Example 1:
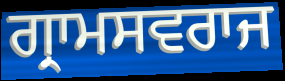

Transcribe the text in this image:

ਗ੍ਰਾਮਸਵਰਾਜ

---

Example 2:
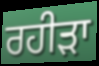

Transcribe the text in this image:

ਰਹੀੜਾ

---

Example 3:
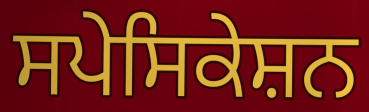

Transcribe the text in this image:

ਸਪੇਸਿਕੇਸ਼ਨ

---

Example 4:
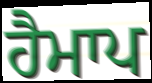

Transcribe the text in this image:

ਹੈਮਾਪ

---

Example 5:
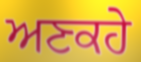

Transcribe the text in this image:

ਅਣਕਹੇ